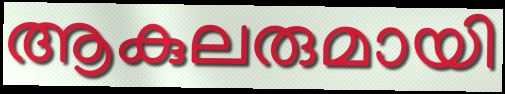
ആകുലരുമായി